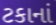
ટકાનાં